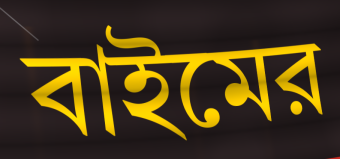
বাইমের